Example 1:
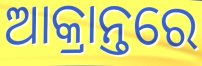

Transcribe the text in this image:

ଆକ୍ରାନ୍ତରେ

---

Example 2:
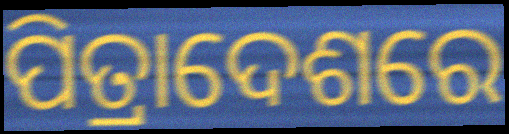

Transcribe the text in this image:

ପିତ୍ରାଦେଶରେ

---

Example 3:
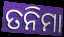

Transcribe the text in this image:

ତନିମା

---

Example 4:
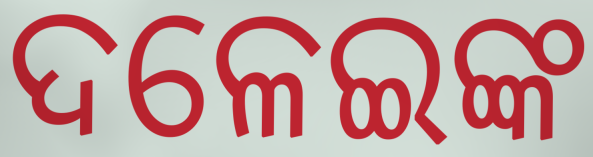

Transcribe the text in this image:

ଦଳେଇଙ୍କ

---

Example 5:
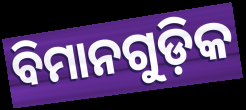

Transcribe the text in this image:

ବିମାନଗୁଡ଼ିକ